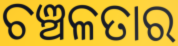
ଚଞ୍ଚଳତାର